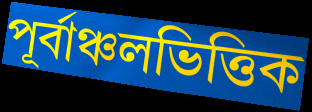
পূর্বাঞ্চলভিত্তিক